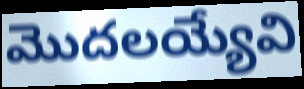
మొదలయ్యేవి